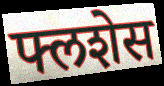
फ्लशेस